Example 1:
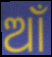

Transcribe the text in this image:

ଆଁ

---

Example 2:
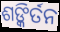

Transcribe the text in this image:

ଶଙ୍କିର୍ତନ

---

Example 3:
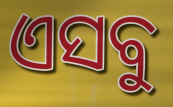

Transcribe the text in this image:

ଏସବୁ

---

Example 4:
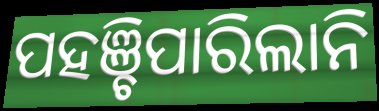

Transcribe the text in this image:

ପହଞ୍ଚିପାରିଲାନି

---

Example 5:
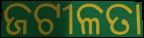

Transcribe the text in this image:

ଜଟୀଳତା